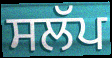
ਸਲੱਪ